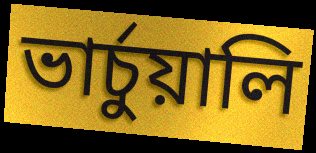
ভার্চুয়ালি